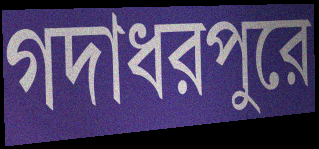
গদাধরপুরে